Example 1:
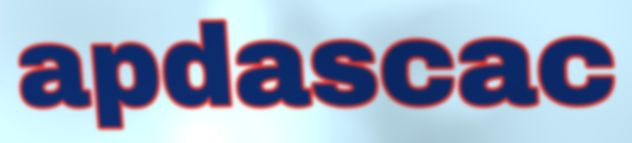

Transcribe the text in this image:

apdascac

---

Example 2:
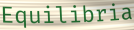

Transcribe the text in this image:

Equilibria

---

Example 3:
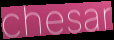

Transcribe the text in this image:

chesar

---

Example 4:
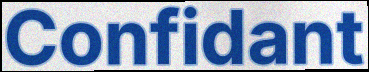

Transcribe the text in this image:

Confidant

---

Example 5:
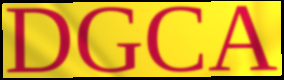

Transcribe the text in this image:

DGCA